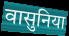
वासुनिया